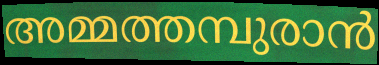
അമ്മത്തമ്പുരാൻ